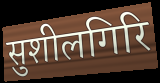
सुशीलगिरि